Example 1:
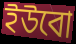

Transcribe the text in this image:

ইউবো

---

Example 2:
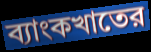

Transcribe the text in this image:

ব্যাংকখাতের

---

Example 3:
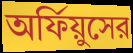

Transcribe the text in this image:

অর্ফিয়ুসের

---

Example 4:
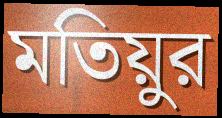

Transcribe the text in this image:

মতিয়ুর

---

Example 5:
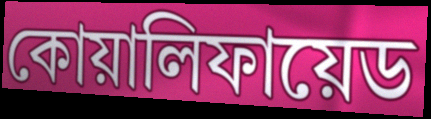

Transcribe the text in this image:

কোয়ালিফায়েড